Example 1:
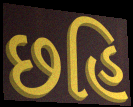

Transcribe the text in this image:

છહિ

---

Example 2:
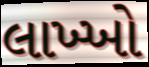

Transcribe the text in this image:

લાખ્ખો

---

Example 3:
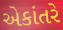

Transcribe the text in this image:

એકાંતરે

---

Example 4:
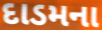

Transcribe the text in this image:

દાડમના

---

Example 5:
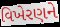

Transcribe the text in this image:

વિખેરણને